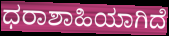
ಧರಾಶಾಹಿಯಾಗಿದೆ